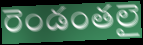
రెండంతలై